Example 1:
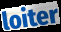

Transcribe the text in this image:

loiter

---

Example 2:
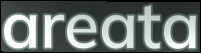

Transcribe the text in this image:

areata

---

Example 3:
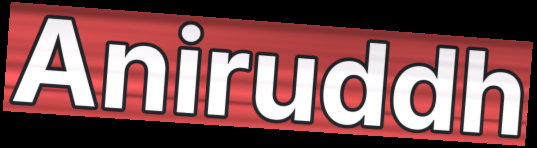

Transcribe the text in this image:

Aniruddh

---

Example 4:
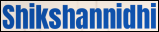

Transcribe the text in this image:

Shikshannidhi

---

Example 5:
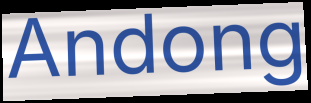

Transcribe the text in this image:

Andong